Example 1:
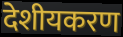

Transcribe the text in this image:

देशीयकरण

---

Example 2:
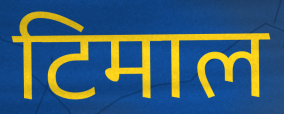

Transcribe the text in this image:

टिमाल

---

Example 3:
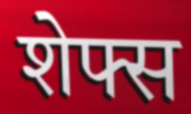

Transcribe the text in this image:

शेफ्स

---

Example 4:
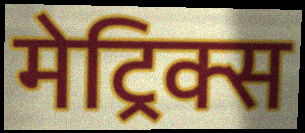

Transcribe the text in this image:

मेट्रिक्स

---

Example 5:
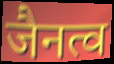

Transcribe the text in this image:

जैनत्व